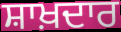
ਸ਼ਾਖ਼ਦਾਰ